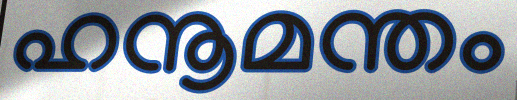
ഹനൂമന്തം